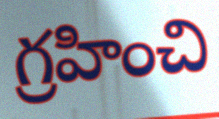
గ్రహించి